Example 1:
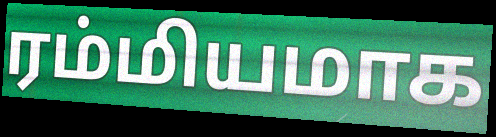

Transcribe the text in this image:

ரம்மியமாக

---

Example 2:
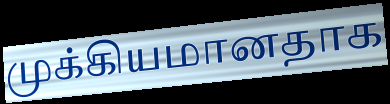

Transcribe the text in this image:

முக்கியமானதாக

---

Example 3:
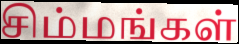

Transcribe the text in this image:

சிம்மங்கள்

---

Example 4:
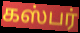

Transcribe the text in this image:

கஸ்பர்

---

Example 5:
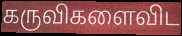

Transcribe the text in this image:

கருவிகளைவிட